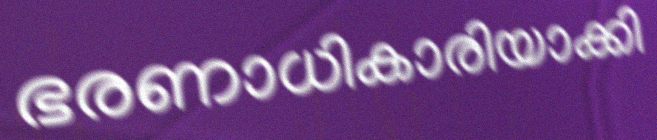
ഭരണാധികാരിയാക്കി